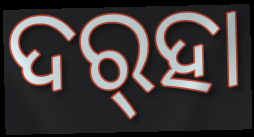
ଦର୍‌ହା